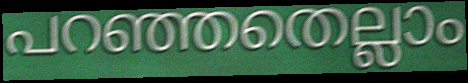
പറഞ്ഞതെല്ലാം